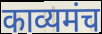
काव्यमंच